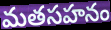
మతసహనం